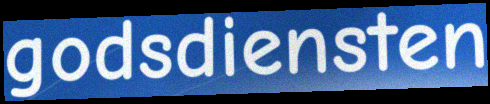
godsdiensten